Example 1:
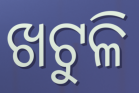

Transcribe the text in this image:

ଖଟୁଳି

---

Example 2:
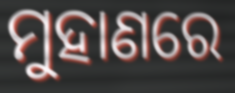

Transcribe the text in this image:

ମୁହାଣରେ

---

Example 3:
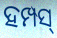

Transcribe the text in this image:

ହମ୍ପସ୍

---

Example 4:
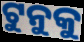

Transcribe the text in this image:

ଟୁନୁକୁ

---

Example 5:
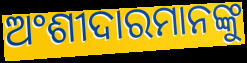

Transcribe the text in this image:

ଅଂଶୀଦାରମାନଙ୍କୁ